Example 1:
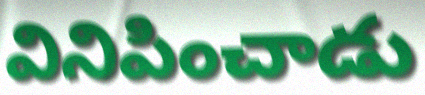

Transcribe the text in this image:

వినిపించాడు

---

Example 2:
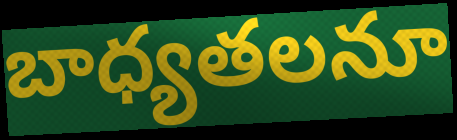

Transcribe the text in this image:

బాధ్యతలనూ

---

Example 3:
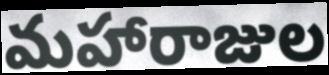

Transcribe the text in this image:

మహారాజుల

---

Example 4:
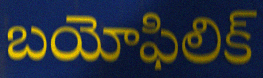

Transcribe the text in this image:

బయోఫిలిక్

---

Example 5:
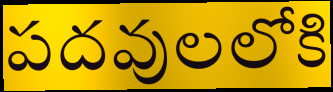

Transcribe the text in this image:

పదవులలోకి